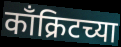
काँक्रिटच्या